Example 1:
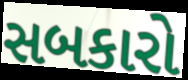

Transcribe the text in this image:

સબકારો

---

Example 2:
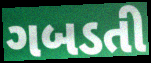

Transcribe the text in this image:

ગબડતી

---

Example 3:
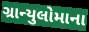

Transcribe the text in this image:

ગ્રાન્યુલોમાના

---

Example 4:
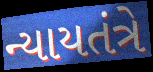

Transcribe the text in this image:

ન્યાયતંત્રે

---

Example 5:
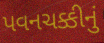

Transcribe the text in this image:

પવનચક્કીનું